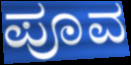
ಪೂವ